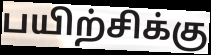
பயிற்சிக்கு